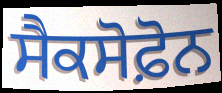
ਸੈਕਸੋਫ਼ੋਨ